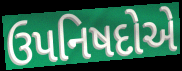
ઉપનિષદોએ